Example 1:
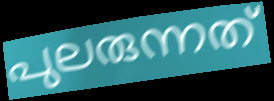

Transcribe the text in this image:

പുലരുന്നത്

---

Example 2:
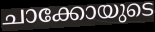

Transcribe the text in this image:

ചാക്കോയുടെ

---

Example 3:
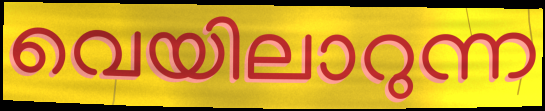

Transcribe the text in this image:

വെയിലാറുന്ന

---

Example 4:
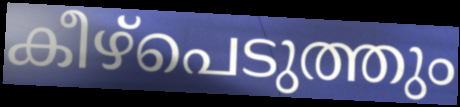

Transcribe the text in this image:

കീഴ്പെടുത്തും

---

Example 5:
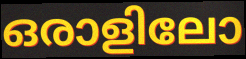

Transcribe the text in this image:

ഒരാളിലോ